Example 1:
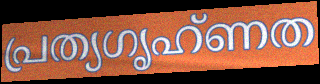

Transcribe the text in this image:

പ്രത്യഗൃഹ്ണത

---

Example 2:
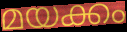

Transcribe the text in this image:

മയക്കം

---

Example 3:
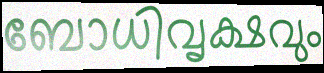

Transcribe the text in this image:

ബോധിവൃക്ഷവും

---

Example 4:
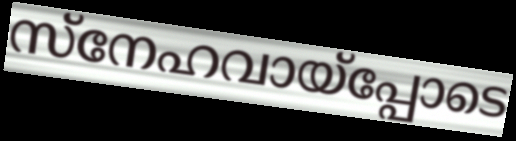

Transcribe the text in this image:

സ്നേഹവായ്പ്പോടെ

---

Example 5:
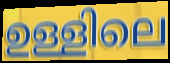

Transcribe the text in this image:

ഉള്ളിലെ